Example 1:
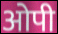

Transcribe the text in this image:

ओपी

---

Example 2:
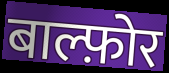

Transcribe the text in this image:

बाल्फ़ोर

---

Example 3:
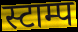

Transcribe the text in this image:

स्टाम्प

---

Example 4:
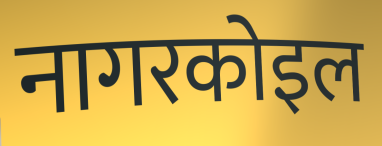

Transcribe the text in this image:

नागरकोइल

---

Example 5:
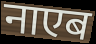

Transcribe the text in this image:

नाएब